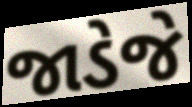
જાડેજે